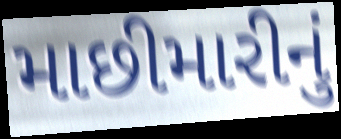
માછીમારીનું